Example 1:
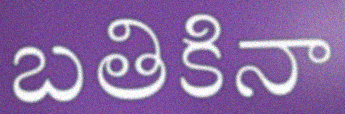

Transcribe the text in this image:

బతికినా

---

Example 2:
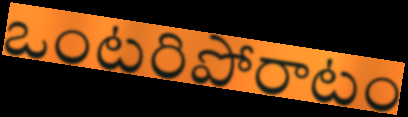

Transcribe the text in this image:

ఒంటరిపోరాటం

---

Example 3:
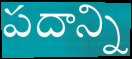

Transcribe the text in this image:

పదాన్ని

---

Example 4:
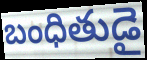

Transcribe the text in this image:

బంధితుడై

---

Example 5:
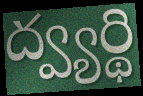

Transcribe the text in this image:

ద్వ్యర్థి